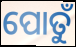
ପୋତୁଁ